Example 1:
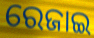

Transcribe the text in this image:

ରେଜାଇ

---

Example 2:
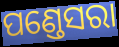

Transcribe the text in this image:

ପଣ୍ଡେସରା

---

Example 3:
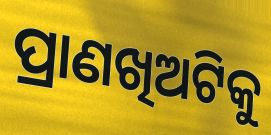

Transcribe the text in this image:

ପ୍ରାଣଖିଅଟିକୁ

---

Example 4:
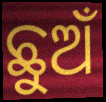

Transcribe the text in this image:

ଛୁଅଁ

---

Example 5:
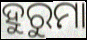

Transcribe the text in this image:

ହୁରୁମା